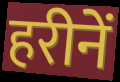
हरीनें